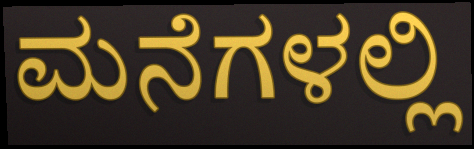
ಮನೆಗಳಲ್ಲಿ